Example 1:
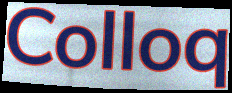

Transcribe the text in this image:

Colloq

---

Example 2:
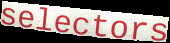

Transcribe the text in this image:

selectors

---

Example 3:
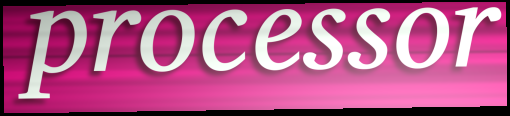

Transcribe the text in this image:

processor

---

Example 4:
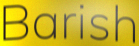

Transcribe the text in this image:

Barish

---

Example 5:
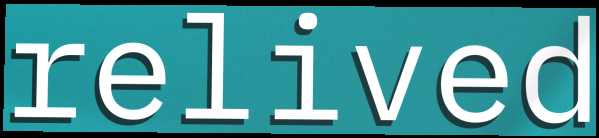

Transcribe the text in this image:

relived